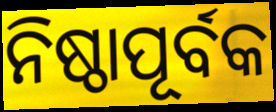
ନିଷ୍ଠାପୂର୍ବକ